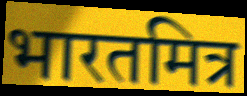
भारतमित्र